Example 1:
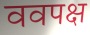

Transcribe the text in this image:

ववपक्ष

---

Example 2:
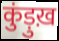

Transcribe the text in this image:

कुंड़ुख़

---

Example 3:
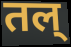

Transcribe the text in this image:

तल्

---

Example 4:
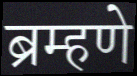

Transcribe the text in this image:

ब्रम्हणे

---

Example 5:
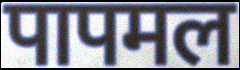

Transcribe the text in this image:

पापमल